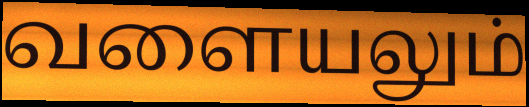
வளையலும்